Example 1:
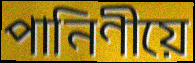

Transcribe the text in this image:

পানিণীয়ে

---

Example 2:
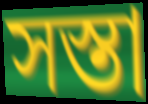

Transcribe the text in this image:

সস্তা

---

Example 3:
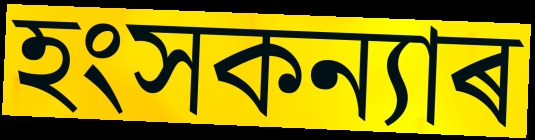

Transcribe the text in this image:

হংসকন্যাৰ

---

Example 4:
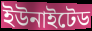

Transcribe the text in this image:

ইউনাইটেড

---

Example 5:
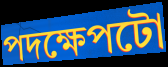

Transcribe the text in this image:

পদক্ষেপটো